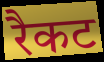
रैकट